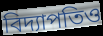
বিদ্যাপতিও